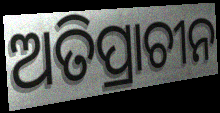
ଅତିପ୍ରାଚୀନ